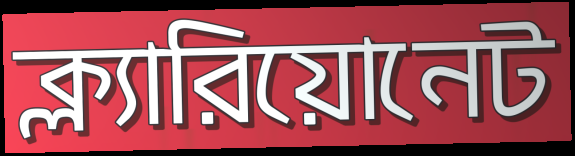
ক্ল্যারিয়োনেট